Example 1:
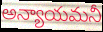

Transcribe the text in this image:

అన్యాయమనీ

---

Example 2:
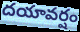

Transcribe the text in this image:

దయావర్షం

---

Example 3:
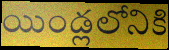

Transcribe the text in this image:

యిండ్లలోనికి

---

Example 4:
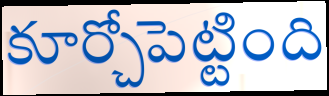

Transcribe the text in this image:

కూర్చోపెట్టింది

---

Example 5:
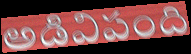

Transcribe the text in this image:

అడివిపంది